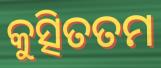
କୁତ୍ସିତତମ